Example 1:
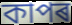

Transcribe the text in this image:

কাপৰ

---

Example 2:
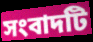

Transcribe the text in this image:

সংবাদটি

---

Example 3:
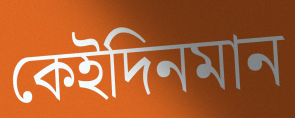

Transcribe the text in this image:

কেইদিনমান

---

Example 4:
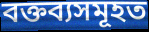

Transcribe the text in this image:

বক্তব্যসমূহত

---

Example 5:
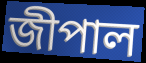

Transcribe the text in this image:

জীপাল